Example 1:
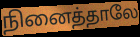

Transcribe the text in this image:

நினைத்தாலே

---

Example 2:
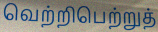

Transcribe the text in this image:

வெற்றிபெற்றுத்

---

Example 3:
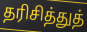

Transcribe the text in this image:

தரிசித்துத்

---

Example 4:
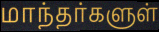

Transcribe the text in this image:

மாந்தர்களுள்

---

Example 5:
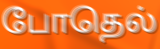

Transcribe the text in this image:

போதெல்